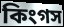
কিংগস